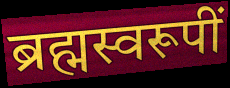
ब्रह्मस्वरूपीं